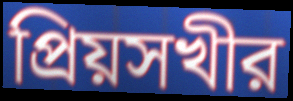
প্রিয়সখীর